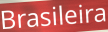
Brasileira